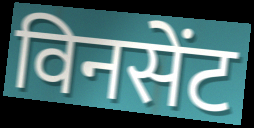
विनसेंट